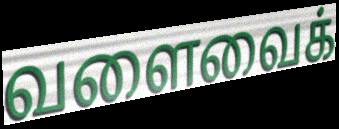
வளைவைக்